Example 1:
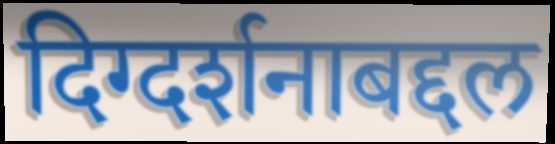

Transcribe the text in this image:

दिग्दर्शनाबद्दल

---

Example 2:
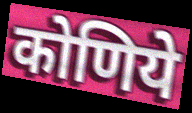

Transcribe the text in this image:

कोणिये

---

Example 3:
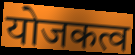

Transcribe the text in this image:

योजकत्व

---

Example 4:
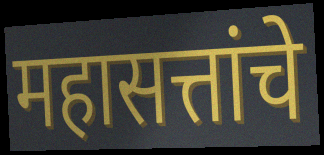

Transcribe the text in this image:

महासत्तांचे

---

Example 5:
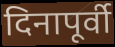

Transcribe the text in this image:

दिनापूर्वी